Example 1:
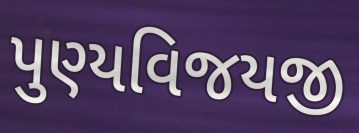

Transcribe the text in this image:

પુણ્યવિજયજી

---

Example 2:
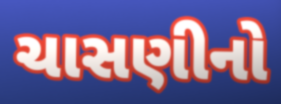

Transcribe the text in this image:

ચાસણીનો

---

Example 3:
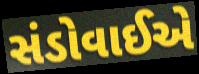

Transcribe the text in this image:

સંડોવાઈએ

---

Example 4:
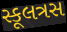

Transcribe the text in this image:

સ્કૂલત્રસ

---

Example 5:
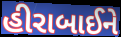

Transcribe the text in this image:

હીરાબાઈને